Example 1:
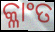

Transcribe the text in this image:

କ୍ଳାଂତ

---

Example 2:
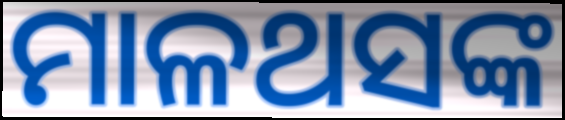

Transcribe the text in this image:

ମାଳଥସଙ୍କ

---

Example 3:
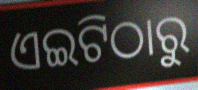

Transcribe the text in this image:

ଏଇଟିଠାରୁ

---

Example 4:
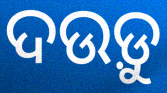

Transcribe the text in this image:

ଦଉଡ଼ୁ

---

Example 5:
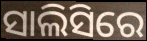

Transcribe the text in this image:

ସାଲିସିରେ